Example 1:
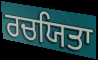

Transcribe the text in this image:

ਰਚਯਿਤਾ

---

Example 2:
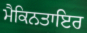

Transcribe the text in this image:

ਮੈਕਿਨਤਾਇਰ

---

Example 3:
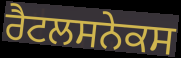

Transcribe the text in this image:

ਰੈਟਲਸਨੇਕਸ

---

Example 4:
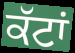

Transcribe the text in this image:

ਕੱਟਾਂ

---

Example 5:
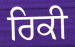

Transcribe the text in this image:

ਰਿਕੀ